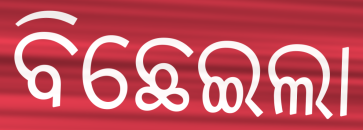
ବିଛେଇଲା